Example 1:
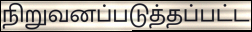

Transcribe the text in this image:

நிறுவனப்படுத்தப்பட்ட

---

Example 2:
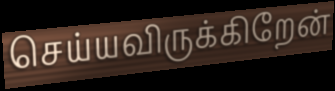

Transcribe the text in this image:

செய்யவிருக்கிறேன்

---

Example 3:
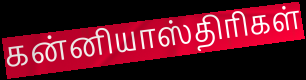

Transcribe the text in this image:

கன்னியாஸ்திரிகள்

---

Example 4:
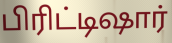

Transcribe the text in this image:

பிரிட்டிஷார்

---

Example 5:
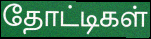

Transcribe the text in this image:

தோட்டிகள்